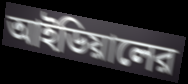
আইডিয়ালের